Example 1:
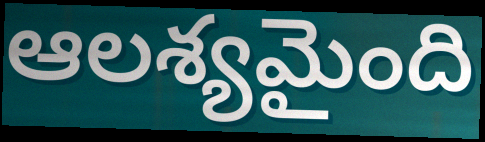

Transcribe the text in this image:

ఆలశ్యమైంది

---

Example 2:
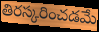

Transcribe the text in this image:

తిరస్కరించడమే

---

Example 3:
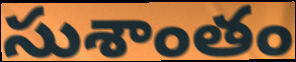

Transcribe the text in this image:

సుశాంతం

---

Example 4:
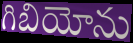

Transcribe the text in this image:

గిబియోను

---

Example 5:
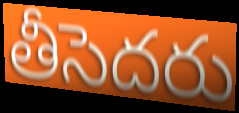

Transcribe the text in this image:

తీసెదరు